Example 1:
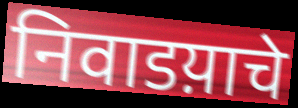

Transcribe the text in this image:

निवाडय़ाचे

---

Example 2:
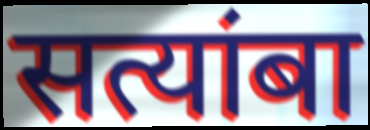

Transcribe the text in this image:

सत्यांबा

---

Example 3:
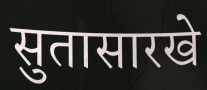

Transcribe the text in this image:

सुतासारखे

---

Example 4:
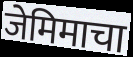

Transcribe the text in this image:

जेमिमाचा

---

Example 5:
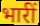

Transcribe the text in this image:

भारीं